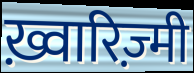
ख़्वारिज़्मी